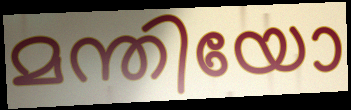
മന്തിയോ